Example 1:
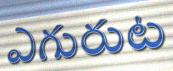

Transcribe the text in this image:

ఎగురుట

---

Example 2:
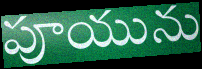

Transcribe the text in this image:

పూయును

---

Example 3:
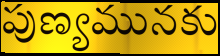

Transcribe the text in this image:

పుణ్యమునకు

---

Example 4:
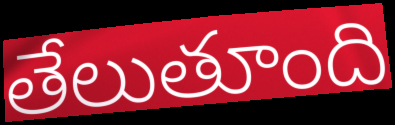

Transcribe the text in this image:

తేలుతూంది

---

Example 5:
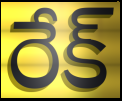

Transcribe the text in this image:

రేక్